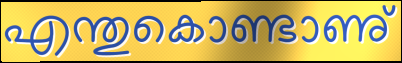
എന്തുകൊണ്ടാണു്